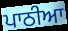
ਪਾਠੀਆ